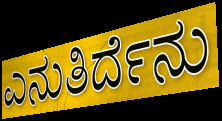
ಎನುತಿರ್ದೆನು